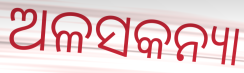
ଅଳସକନ୍ୟା